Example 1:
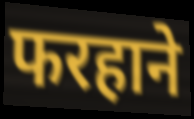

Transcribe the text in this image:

फरहाने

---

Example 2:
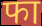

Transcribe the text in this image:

फा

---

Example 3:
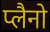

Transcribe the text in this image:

प्लैनो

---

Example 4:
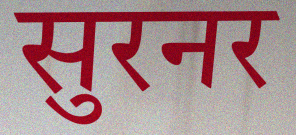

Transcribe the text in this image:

सुरनर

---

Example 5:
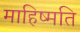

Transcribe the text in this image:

माहिष्मति